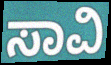
ಸಾವಿ